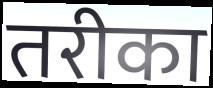
तरीका